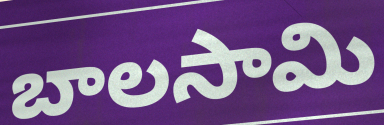
బాలసామి